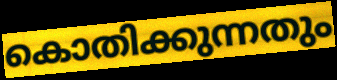
കൊതിക്കുന്നതും